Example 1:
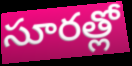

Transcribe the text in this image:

సూరత్లో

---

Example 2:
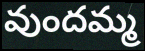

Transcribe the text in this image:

వుందమ్మ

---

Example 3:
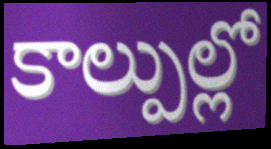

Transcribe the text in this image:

కాల్పుల్లో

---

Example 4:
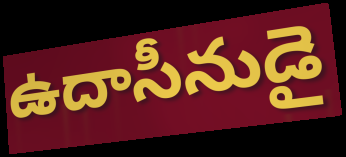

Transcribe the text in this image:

ఉదాసీనుడై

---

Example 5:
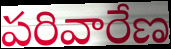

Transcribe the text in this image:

పరివారేణ